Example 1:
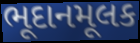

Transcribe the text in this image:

ભૂદાનમૂલક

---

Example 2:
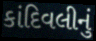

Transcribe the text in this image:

કાંદિવલીનું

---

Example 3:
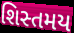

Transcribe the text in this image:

શિસ્તમય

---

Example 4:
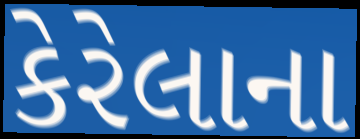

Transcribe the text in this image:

કેરેલાના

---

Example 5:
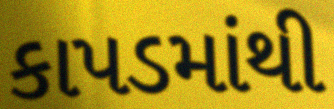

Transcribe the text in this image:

કાપડમાંથી